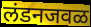
लंडनजवळ